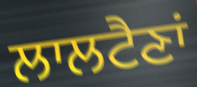
ਲਾਲਟੈਣਾਂ